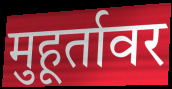
मुहूर्तावर